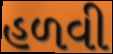
હળવી